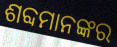
ଶବ୍ଦମାନଙ୍କର